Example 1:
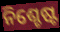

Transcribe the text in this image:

ନିଶ୍ଚେଷ୍ଟ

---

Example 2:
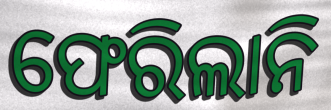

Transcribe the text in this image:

ଫେରିଲାନି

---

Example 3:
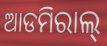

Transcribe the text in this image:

ଆଡମିରାଲ୍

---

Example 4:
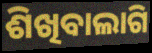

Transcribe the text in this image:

ଶିଖିବାଲାଗି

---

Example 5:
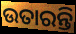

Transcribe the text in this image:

ଉତାରନ୍ତି